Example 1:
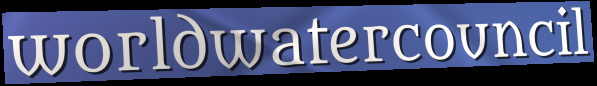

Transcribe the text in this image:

worldwatercouncil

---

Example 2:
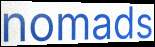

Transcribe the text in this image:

nomads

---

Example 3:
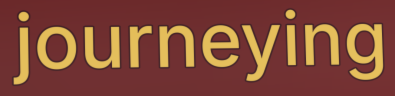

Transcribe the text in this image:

journeying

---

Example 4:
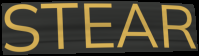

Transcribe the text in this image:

STEAR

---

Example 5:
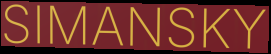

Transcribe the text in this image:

SIMANSKY